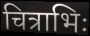
चित्राभिः